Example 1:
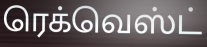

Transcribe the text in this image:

ரெக்வெஸ்ட்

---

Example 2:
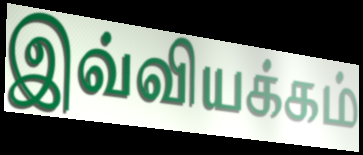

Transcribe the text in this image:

இவ்வியக்கம்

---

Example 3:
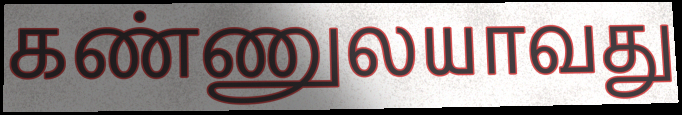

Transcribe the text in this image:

கண்ணுலயாவது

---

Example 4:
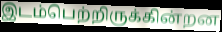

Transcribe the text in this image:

இடம்பெற்றிருக்கின்றன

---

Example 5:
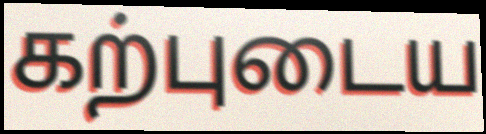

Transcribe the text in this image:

கற்புடைய